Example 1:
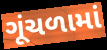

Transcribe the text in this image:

ગૂંચળામાં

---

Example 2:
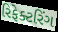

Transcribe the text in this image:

રિફેક્ટરિંગ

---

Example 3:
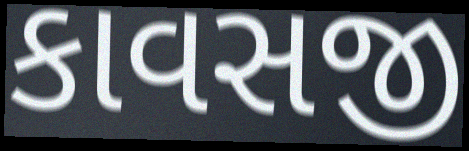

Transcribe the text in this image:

કાવસજી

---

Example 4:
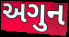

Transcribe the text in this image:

અગુન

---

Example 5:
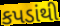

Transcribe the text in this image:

કપડાંથી